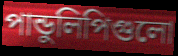
পান্ডুলিপিগুলো